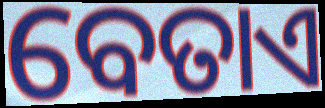
ବେତାଏ